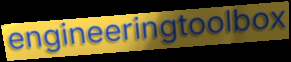
engineeringtoolbox